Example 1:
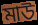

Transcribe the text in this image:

মাউ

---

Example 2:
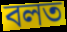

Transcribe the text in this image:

বলত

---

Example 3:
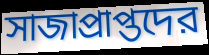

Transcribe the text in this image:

সাজাপ্রাপ্তদের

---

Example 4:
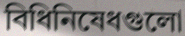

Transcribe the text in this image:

বিধিনিষেধগুলো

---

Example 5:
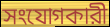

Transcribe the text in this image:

সংযোগকারী